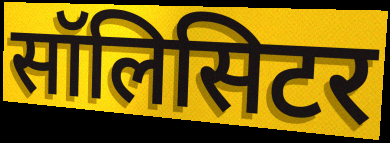
सॉलिसिटर